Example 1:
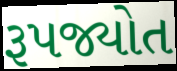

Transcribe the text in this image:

રૂપજ્યોત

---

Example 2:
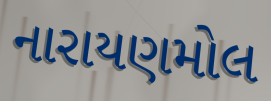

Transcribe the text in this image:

નારાયણમોલ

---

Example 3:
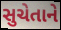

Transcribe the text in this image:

સુચેતાને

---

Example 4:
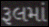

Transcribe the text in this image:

રૂલમાં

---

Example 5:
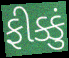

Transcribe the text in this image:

ફીક્કું